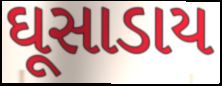
ઘૂસાડાય